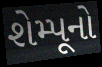
શેમ્પૂનો